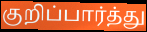
குறிப்பார்த்து